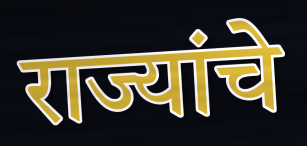
राज्यांचे